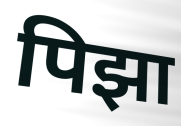
पिझा